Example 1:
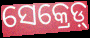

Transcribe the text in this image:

ସେକ୍ରେଡ଼୍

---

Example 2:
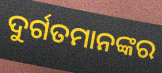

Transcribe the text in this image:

ଦୁର୍ଗତମାନଙ୍କର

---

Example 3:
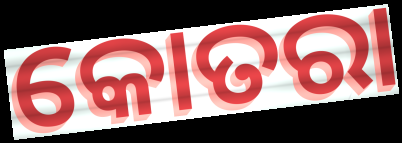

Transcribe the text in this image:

କୋତରା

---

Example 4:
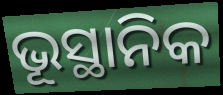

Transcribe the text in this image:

ଭୂସ୍ଥାନିକ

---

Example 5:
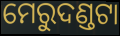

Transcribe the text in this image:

ମେରୁଦଣ୍ଡଟା